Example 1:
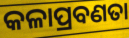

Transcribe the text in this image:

କଳାପ୍ରବଣତା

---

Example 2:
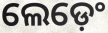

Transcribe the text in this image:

ଲେଡ଼େଂ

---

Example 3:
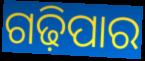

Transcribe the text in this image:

ଗଢ଼ିପାର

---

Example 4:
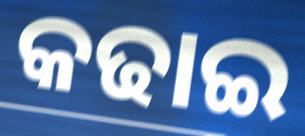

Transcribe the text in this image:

କଢାଇ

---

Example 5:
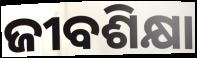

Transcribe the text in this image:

ଜୀବଶିକ୍ଷା